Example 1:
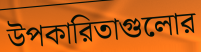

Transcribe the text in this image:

উপকারিতাগুলোর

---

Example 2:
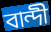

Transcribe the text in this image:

বান্দী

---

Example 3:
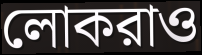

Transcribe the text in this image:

লোকরাও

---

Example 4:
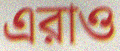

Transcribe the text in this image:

এরাও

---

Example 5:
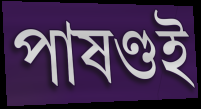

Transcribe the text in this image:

পাষণ্ডই